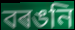
বৰঙনি